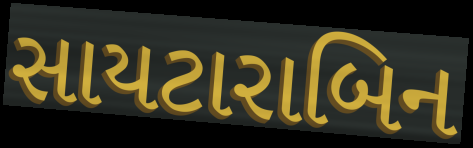
સાયટારાબિન